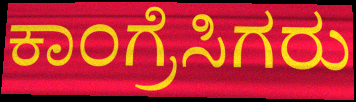
ಕಾಂಗ್ರೆಸಿಗರು